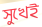
সুখেই